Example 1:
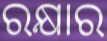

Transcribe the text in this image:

ରକ୍ଷାର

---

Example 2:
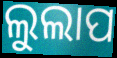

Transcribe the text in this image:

ଲୁଲାପ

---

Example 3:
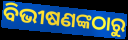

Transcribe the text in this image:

ବିଭୀଷଣଙ୍କଠାରୁ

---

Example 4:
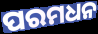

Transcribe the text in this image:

ପରମଧନ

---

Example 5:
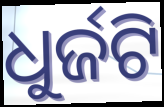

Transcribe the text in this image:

ଧୁର୍ଜଟି